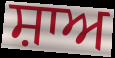
ਸ਼ਾਅ